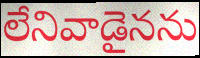
లేనివాడైనను